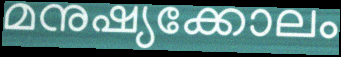
മനുഷ്യക്കോലം